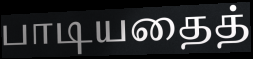
பாடியதைத்